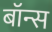
बॉन्स